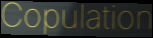
Copulation